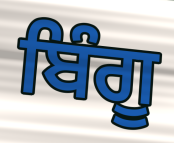
ਬਿੰਗੂ